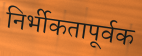
निर्भीकतापूर्वक